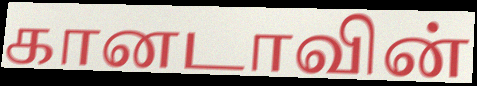
கானடாவின்